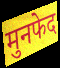
मुनफेद